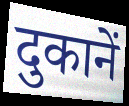
दुकानें